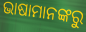
ଭାଷାମାନଙ୍କରୁ